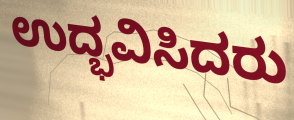
ಉದ್ಭವಿಸಿದರು